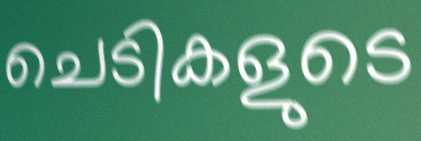
ചെടികളുടെ